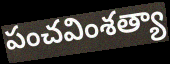
పంచవింశత్యా